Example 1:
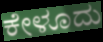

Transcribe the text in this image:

ಕೇಳೂದು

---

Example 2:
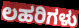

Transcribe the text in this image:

ಲಹರಿಗಳು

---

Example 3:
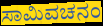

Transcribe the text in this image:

ಸಾಮಿವಚನಂ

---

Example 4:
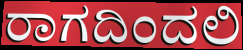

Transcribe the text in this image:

ರಾಗದಿಂದಲಿ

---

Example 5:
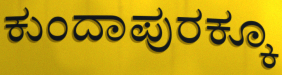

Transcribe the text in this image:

ಕುಂದಾಪುರಕ್ಕೂ